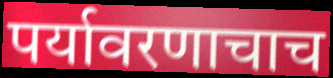
पर्यावरणाचाच